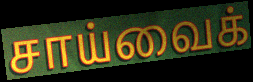
சாய்வைக்